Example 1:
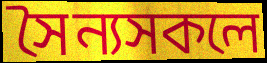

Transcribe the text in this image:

সৈন্যসকলে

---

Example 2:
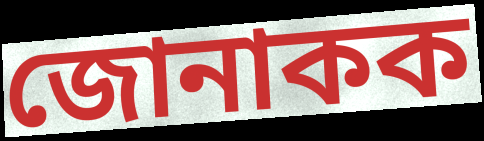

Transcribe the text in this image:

জোনাকক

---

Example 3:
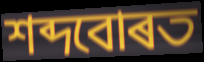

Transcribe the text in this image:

শব্দবোৰত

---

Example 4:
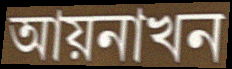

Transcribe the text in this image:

আয়নাখন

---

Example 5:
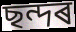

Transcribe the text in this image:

ছন্দৰ